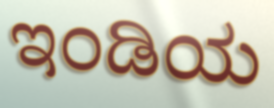
ಇಂಡಿಯ